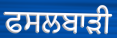
ਫਸਲਬਾੜੀ